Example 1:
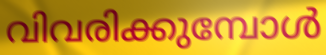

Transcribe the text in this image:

വിവരിക്കുമ്പോൾ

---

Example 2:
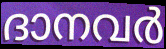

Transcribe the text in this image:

ദാനവർ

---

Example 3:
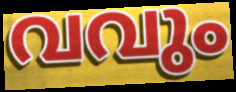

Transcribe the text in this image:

വവും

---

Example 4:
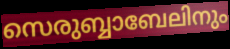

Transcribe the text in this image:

സെരുബ്ബാബേലിനും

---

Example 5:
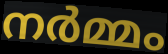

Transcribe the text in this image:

നർമ്മം